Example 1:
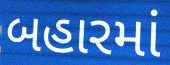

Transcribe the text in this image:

બહારમાં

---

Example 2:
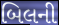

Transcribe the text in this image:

બિલની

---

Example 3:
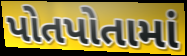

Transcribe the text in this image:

પોતપોતામાં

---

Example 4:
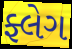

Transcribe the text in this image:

ફ્લેગ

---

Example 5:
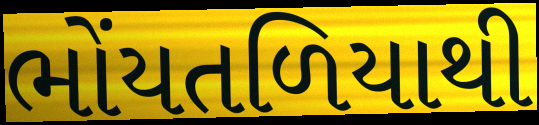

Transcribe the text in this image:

ભોંયતળિયાથી